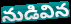
నుడివిన